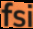
fsi